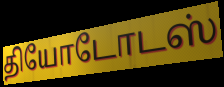
தியோடோடஸ்